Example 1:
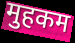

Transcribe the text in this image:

मुहकम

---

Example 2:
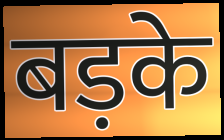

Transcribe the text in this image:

बड़के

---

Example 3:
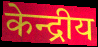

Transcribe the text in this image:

केन्द्रीय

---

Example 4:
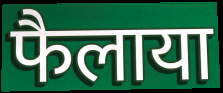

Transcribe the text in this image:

फैलाया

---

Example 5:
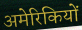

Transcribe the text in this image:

अमेरिकियों